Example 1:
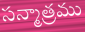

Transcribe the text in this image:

సన్మాత్రము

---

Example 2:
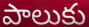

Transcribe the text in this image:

పాలుకు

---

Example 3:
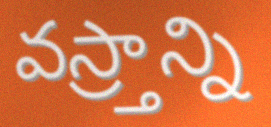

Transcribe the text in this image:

వస్ర్తాన్ని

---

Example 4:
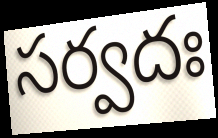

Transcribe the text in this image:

సర్వదః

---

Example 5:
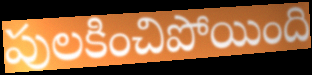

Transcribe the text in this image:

పులకించిపోయింది